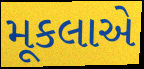
મૂકલાએ